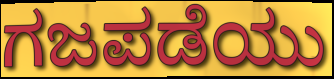
ಗಜಪಡೆಯು